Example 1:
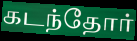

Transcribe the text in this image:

கடந்தோர்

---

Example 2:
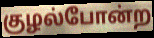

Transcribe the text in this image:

குழல்போன்ற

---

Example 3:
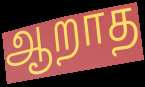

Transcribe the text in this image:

ஆறாத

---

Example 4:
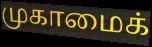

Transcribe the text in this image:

முகாமைக்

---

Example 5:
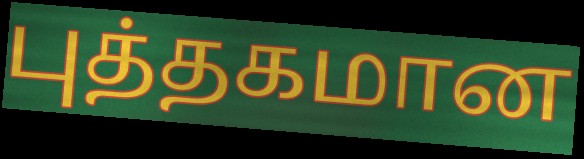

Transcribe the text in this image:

புத்தகமான